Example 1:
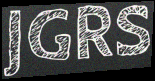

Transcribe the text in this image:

JGRS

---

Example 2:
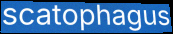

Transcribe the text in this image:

scatophagus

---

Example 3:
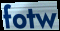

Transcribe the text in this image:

fotw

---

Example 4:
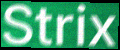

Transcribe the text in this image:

Strix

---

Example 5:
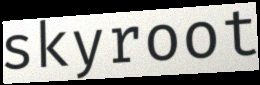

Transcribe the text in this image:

skyroot